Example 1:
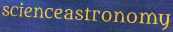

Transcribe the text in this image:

scienceastronomy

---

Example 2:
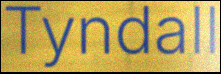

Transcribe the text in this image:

Tyndall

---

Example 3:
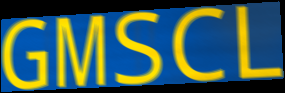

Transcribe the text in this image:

GMSCL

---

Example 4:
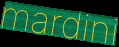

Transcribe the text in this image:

mardini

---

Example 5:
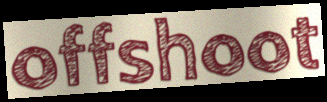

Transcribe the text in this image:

offshoot